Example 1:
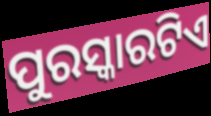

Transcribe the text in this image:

ପୁରସ୍କାରଟିଏ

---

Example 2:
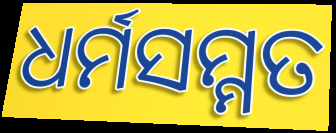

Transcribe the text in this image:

ଧର୍ମସମ୍ମତ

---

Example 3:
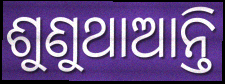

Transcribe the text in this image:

ଶୁଣୁଥାଆନ୍ତି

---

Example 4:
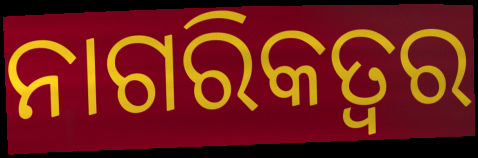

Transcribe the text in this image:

ନାଗରିକତ୍ୱର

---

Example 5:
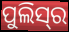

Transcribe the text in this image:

ପୁଲିସ୍‌ର